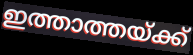
ഇത്താത്തയ്ക്ക്